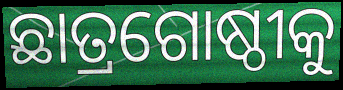
ଛାତ୍ରଗୋଷ୍ଠୀକୁ